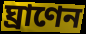
ঘ্রাণেন